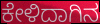
ಕೇಳಿದಾಗಿನ